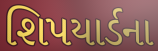
શિપયાર્ડના